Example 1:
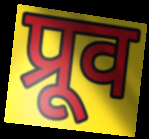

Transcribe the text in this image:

प्रूव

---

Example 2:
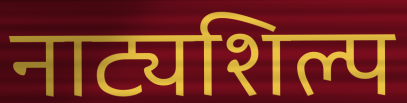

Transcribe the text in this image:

नाट्यशिल्प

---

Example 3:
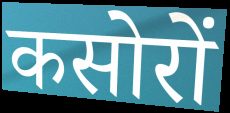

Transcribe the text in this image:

कसोरों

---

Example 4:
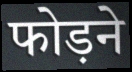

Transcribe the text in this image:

फोड़ने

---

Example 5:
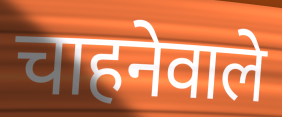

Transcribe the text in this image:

चाहनेवाले